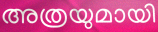
അത്രയുമായി